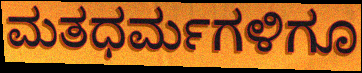
ಮತಧರ್ಮಗಳಿಗೂ